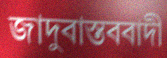
জাদুবাস্তববাদী